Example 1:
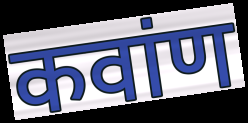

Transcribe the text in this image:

कवांण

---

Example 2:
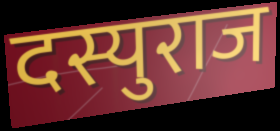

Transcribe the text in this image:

दस्युराज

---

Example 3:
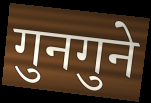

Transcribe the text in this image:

गुनगुने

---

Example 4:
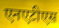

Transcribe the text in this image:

एनएटीएस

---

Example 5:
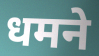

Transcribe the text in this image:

धमने